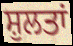
ਸ਼ੁਲਤਾਂ